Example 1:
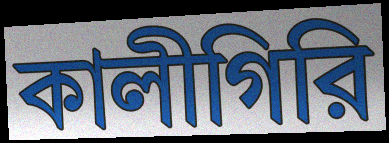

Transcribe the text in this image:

কালীগিরি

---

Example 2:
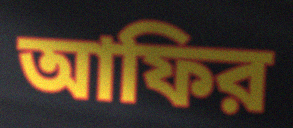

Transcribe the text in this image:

আফির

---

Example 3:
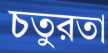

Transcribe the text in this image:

চতুরতা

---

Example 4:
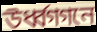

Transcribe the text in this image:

উর্ধ্বগগনে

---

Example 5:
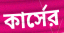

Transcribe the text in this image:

কার্সের